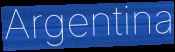
Argentina